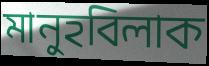
মানুহবিলাক